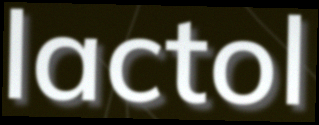
lactol